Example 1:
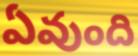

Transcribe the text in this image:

ఏవుంది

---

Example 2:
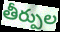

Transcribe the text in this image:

తీర్పుల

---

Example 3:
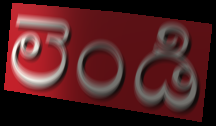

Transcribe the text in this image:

లెండి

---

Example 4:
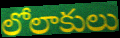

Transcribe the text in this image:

లోలాకులు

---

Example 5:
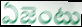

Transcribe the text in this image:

ఏజెంటు